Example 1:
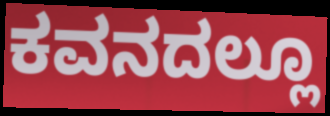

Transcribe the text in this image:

ಕವನದಲ್ಲೂ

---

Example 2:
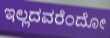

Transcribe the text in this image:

ಇಲ್ಲದವರೆಂದೋ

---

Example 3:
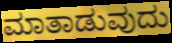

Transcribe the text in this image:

ಮಾತಾಡುವುದು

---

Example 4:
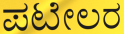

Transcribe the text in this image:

ಪಟೇಲರ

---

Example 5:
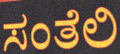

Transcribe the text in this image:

ಸಂತೆಲಿ